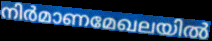
നിർമാണമേഖലയിൽ